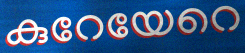
കുറേയേറെ